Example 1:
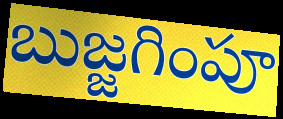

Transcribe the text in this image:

బుజ్జగింపూ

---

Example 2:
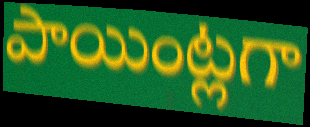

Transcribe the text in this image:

పాయింట్లగా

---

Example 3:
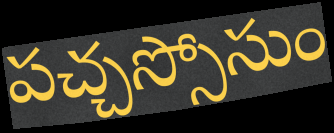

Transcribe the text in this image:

పచ్చస్సోసుం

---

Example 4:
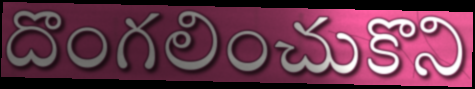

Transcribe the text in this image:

దొంగలించుకొని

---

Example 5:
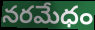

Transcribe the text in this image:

నరమేధం